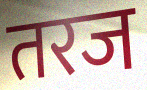
तरज